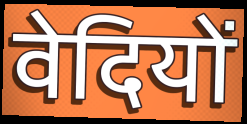
वेदियों